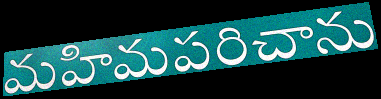
మహిమపరిచాను